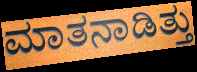
ಮಾತನಾಡಿತ್ತು